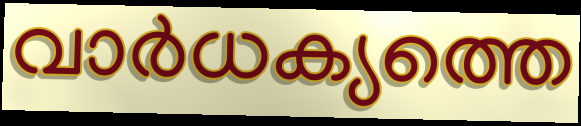
വാർധക്യത്തെ